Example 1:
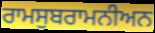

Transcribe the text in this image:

ਰਾਮਸੁਬਰਾਮਨੀਅਨ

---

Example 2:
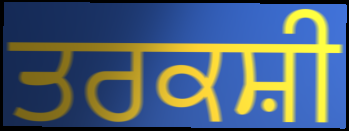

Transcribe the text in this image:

ਤਰਕਸ਼ੀ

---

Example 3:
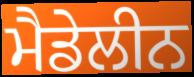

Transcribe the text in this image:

ਮੈਡੇਲੀਨ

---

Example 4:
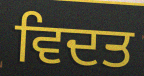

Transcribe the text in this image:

ਵਿਦਤ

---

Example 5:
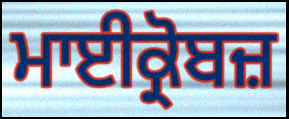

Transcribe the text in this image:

ਮਾਈਕ੍ਰੋਬਜ਼